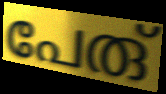
പേരു്